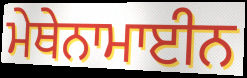
ਮੇਥੇਨਾਮਾਈਨ